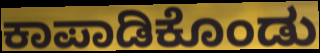
ಕಾಪಾಡಿಕೊಂಡು